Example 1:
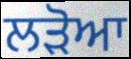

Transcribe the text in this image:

ਲੜੋਆ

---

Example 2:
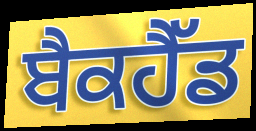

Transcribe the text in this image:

ਬੈਕਹੈੱਡ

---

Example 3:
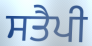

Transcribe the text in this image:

ਸਤੈਪੀ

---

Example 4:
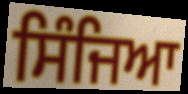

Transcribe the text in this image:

ਸਿੰਜਿਆ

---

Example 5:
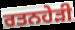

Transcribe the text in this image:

ਰਤਨਹੇੜੀ